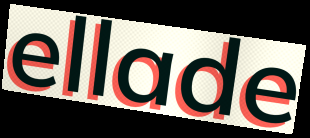
ellade